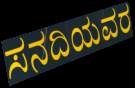
ಸನದಿಯವರ